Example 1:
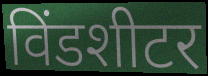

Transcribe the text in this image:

विंडशीटर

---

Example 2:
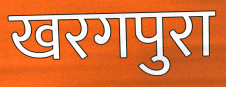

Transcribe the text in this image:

खरगपुरा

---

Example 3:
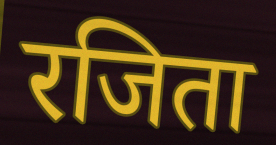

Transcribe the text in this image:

रजिता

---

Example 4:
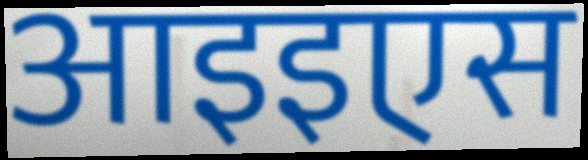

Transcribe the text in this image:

आइइएस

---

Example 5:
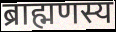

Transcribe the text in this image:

ब्राह्मणस्य